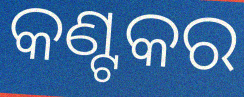
କଣ୍ଟକର